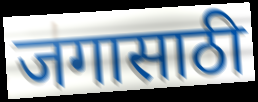
जगासाठी